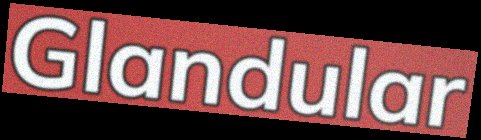
Glandular